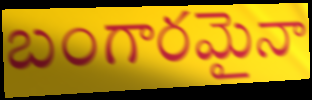
బంగారమైనా